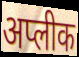
अप्लीक